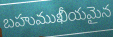
బహుముఖీయమైన